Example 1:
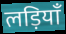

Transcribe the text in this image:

लड़ियाँ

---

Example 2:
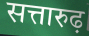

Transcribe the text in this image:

सत्तारुढ़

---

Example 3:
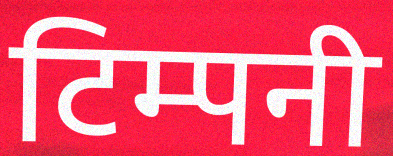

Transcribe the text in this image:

टिम्पनी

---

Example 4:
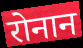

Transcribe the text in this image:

रोनान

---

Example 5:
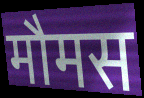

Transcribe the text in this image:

मौमस